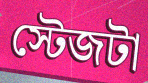
স্টেজটা